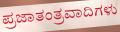
ಪ್ರಜಾತಂತ್ರವಾದಿಗಳು